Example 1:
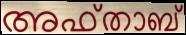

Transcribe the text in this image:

അഫ്താബ്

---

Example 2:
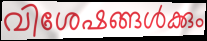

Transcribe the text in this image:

വിശേഷങ്ങൾക്കും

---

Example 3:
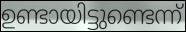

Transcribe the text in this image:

ഉണ്ടായിട്ടുണ്ടെന്ന്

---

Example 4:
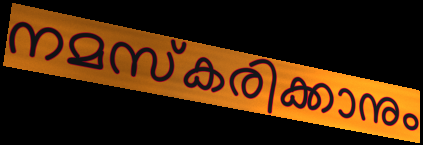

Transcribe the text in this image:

നമസ്കരിക്കാനും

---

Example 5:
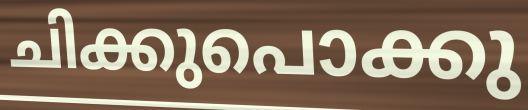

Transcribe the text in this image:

ചിക്കുപൊക്കു